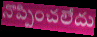
నొప్పించలేదు